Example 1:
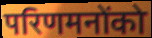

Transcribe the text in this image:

परिणमनोंको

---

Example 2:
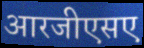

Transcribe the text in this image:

आरजीएसए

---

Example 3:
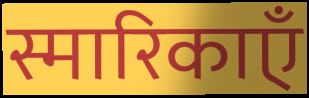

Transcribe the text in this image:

स्मारिकाएँ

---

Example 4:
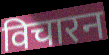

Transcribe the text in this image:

विचारन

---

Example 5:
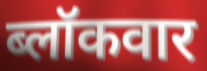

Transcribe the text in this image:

ब्लॉकवार